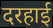
दरहाई